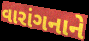
વારાંગનાને